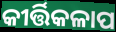
କୀର୍ତ୍ତିକଳାପ